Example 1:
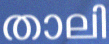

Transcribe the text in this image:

താലി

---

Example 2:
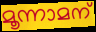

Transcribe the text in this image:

മൂന്നാമന്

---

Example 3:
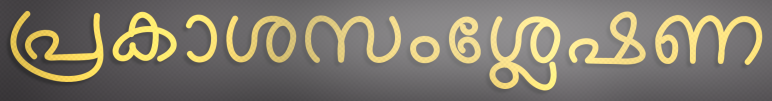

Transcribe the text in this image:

പ്രകാശസംശ്ലേഷണ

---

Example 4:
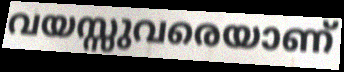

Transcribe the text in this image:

വയസ്സുവരെയാണ്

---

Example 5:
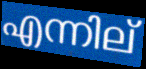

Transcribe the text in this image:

എന്നില്